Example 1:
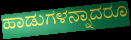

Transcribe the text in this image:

ಹಾಡುಗಳನ್ನಾದರೂ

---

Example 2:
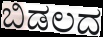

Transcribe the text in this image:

ಬಿಡಲದ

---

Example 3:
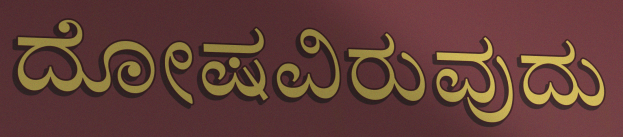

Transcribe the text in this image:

ದೋಷವಿರುವುದು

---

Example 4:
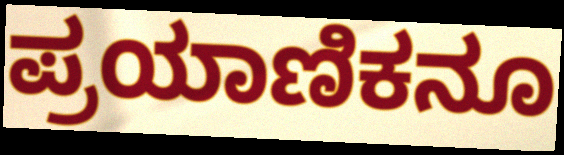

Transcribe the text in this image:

ಪ್ರಯಾಣಿಕನೂ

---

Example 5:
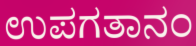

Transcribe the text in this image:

ಉಪಗತಾನಂ